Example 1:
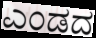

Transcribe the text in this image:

ಎಂಡದ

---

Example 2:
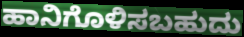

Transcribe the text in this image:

ಹಾನಿಗೊಳಿಸಬಹುದು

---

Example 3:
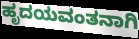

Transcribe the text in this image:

ಹೃದಯವಂತನಾಗಿ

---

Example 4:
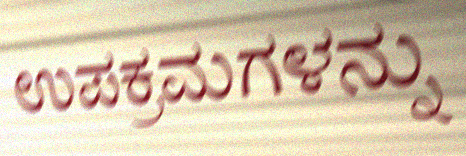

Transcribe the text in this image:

ಉಪಕ್ರಮಗಳನ್ನು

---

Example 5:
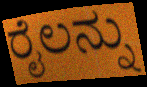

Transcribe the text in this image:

ರೈಲನ್ನು